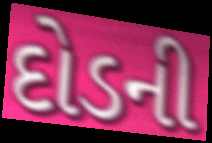
દોડની